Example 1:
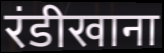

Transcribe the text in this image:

रंडीखाना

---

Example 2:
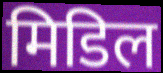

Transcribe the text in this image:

मिडिल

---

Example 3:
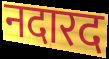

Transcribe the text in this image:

नदारद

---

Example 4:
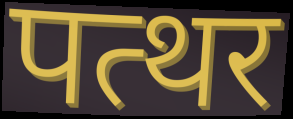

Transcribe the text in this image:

पत्थर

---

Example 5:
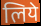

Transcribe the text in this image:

लिये